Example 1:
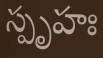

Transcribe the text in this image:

స్పృహః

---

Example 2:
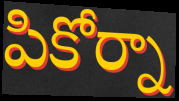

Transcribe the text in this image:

పికోర్నా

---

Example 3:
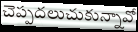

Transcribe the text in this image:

చెప్పదలుచుకున్నావో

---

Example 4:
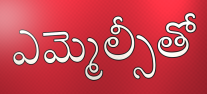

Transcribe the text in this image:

ఎమ్మెల్సీతో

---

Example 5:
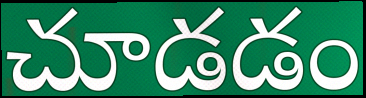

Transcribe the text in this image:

చూడడం